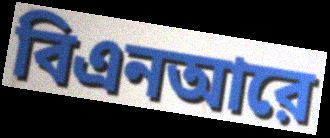
বিএনআরে